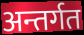
अन्‍तर्गत